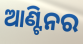
ଆଣ୍ଟିନର